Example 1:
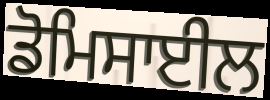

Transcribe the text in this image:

ਡੋਮਿਸਾਈਲ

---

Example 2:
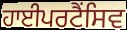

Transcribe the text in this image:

ਹਾਈਪਰਟੈਂਸਿਵ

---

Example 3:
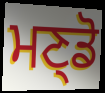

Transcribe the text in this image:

ਮਣ੍ਡੋ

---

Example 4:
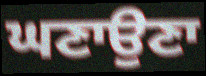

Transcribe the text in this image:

ਘਣਾਉਣਾ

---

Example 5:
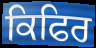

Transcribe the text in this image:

ਕਿਫਿਰ